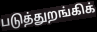
படுத்துறங்கிக்